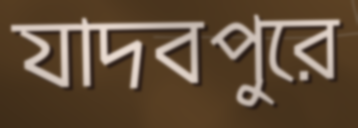
যাদবপুরে